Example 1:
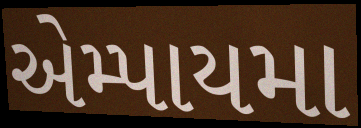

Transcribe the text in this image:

એમ્પાયમા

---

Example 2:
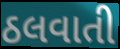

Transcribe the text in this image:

ઠલવાતી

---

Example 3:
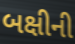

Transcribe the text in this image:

બક્ષીની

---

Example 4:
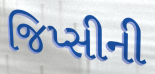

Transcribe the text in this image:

જિપ્સીની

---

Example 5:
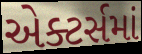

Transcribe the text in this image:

એક્ટર્સમાં